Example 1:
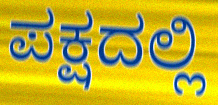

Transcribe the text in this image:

ಪಕ್ಷದಲ್ಲಿ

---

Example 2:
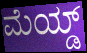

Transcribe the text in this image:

ಮೆಯ್ಡ್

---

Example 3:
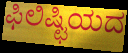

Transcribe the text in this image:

ಫಿಲಿಷ್ಟಿಯದ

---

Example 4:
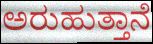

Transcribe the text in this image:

ಅರುಹುತ್ತಾನೆ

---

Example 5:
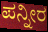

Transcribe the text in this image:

ಪನ್ನೀರ